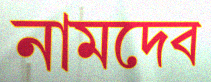
নামদেব